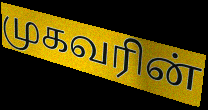
முகவரின்